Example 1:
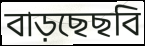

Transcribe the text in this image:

বাড়ছেছবি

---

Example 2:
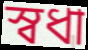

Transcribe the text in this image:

স্বধা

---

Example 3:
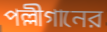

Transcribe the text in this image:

পল্লীগানের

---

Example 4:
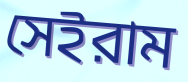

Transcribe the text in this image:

সেইরাম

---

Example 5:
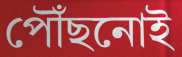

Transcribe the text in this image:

পৌঁছনোই